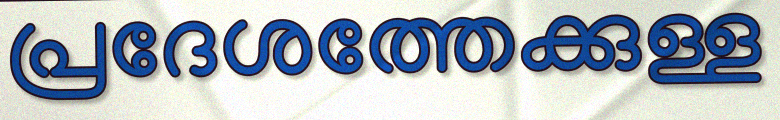
പ്രദേശത്തേക്കുള്ള